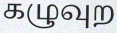
கழுவுற